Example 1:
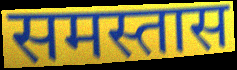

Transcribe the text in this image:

समस्तास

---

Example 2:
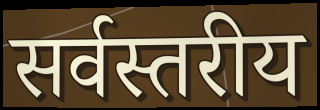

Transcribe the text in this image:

सर्वस्तरीय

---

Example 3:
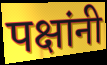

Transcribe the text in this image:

पक्षांनी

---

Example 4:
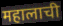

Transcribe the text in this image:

महालाची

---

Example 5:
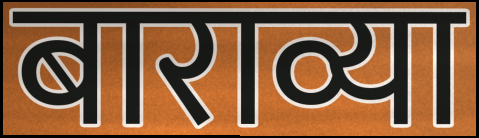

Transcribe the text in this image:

बाराव्या